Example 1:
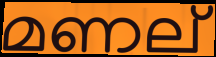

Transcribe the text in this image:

മണല്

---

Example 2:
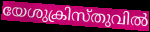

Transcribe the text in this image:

യേശുക്രിസ്തുവിൽ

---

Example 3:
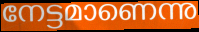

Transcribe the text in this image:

നേട്ടമാണെന്നു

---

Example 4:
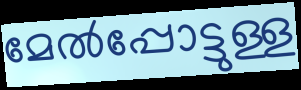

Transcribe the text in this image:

മേൽപ്പോട്ടുള്ള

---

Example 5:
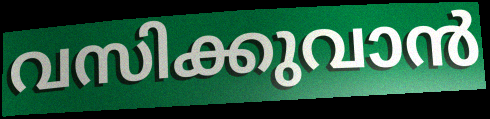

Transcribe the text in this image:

വസിക്കുവാൻ